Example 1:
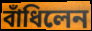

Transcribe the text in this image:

বাঁধিলেন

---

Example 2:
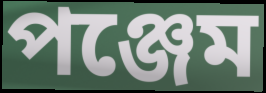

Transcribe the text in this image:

পঞ্জেম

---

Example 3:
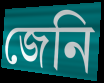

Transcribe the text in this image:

জেনি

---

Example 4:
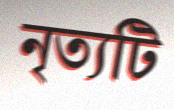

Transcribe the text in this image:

নৃত্যটি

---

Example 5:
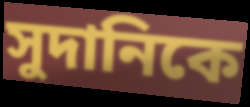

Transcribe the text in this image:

সুদানিকে